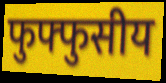
फुफ्फुसीय